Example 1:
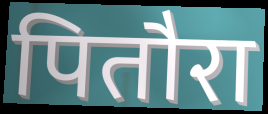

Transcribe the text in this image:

पितौरा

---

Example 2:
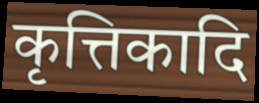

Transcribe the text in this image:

कृत्तिकादि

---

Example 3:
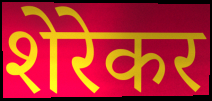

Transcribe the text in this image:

शेरेकर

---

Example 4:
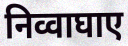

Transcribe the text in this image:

निव्वाघाए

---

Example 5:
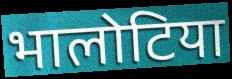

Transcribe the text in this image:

भालोटिया